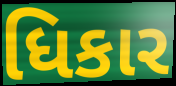
ધિકાર